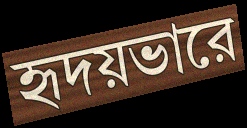
হৃদয়ভারে